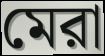
মেরা